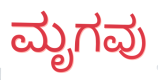
ಮೃಗವು